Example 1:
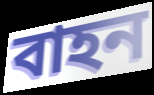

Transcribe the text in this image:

বাহন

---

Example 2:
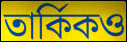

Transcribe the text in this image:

তার্কিকও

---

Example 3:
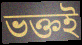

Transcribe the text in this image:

ভক্তই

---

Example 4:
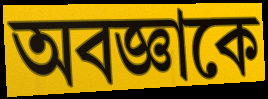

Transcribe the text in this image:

অবজ্ঞাকে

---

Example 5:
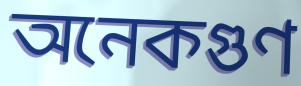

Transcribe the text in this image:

অনেকগুণ